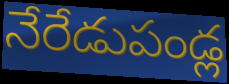
నేరేడుపండ్ల